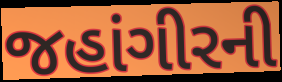
જહાંગીરની